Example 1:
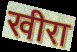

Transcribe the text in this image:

खीरा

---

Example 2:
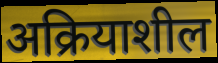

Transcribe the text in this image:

अक्रियाशील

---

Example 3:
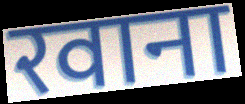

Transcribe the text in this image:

रवाना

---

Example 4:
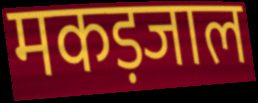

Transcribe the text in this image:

मकड़जाल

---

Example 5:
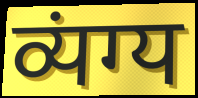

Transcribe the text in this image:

व्यंग्य